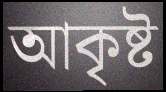
আকৃষ্ট